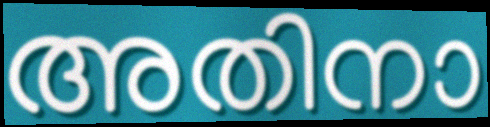
അതിനാ